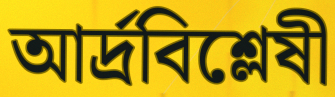
আর্দ্রবিশ্লেষী